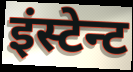
इंस्टेन्ट